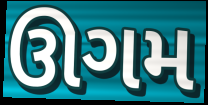
ઊગમ